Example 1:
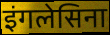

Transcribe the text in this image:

इंगलेसिना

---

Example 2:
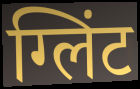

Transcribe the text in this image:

ग्लिंट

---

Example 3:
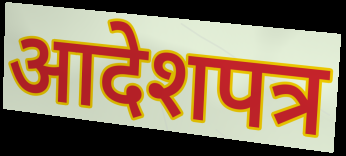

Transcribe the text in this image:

आदेशपत्र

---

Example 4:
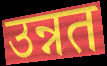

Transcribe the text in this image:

उन्नत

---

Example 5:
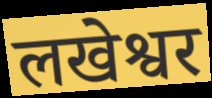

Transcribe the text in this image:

लखेश्वर